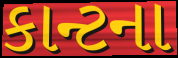
કાન્ટના